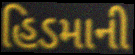
હિડમાની